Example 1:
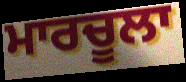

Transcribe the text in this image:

ਮਾਰਚੂਲਾ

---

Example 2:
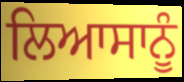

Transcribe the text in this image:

ਲਿਆਸਾਨੂੰ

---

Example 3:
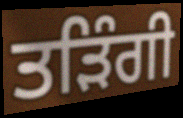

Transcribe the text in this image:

ਤੜਿੰਗੀ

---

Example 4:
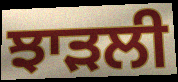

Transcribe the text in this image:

ਝਾੜਲੀ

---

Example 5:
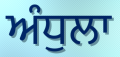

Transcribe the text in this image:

ਅੰਧੁਲਾ